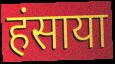
हंसाया